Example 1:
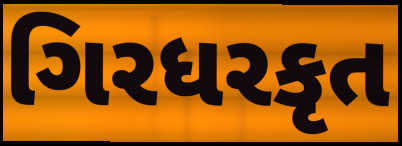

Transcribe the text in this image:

ગિરધરકૃત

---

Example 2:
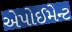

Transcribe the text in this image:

એપોઈમેન્ટ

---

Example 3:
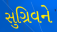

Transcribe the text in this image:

સુગ્રિવને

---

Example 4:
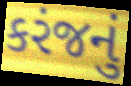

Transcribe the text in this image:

કરંજનું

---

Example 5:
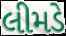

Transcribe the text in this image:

લીમડે